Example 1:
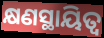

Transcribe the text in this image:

କ୍ଷଣସ୍ଥାୟିତ୍ୱ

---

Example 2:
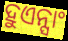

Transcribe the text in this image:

ହୁଏନ୍ସାଂ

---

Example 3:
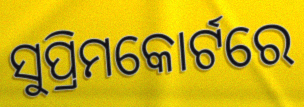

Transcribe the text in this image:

ସୁପ୍ରିମକୋର୍ଟରେ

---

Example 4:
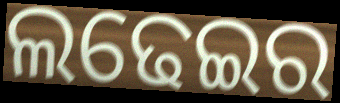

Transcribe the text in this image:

ଲଢେଇର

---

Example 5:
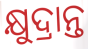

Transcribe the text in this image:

କ୍ଷୁଦ୍ରାନ୍ତ